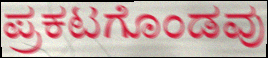
ಪ್ರಕಟಗೊಂಡವು